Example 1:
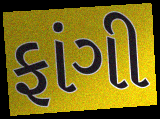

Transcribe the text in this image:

ફાંગી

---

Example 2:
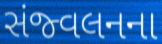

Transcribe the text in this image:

સંજ્વલનના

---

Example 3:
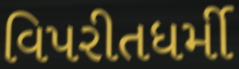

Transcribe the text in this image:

વિપરીતધર્મી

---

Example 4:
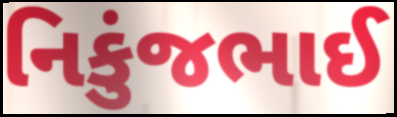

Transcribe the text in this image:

નિકુંજભાઈ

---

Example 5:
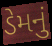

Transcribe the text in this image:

ડેમનું